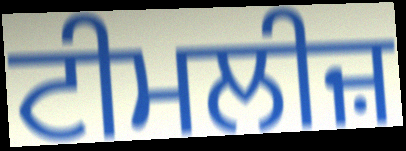
ਟੀਮਲੀਜ਼